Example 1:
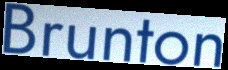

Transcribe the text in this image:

Brunton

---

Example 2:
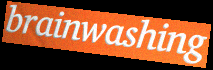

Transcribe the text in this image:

brainwashing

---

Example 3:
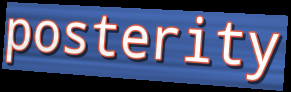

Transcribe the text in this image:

posterity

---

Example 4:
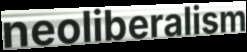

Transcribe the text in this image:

neoliberalism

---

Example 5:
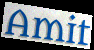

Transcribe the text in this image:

Amit